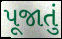
પૂજાતું